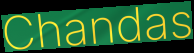
Chandas